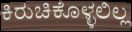
ಕಿರುಚಿಕೊಳ್ಳಲಿಲ್ಲ